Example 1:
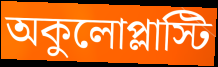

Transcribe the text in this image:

অকুলোপ্লাস্টি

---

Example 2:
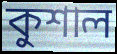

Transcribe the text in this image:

কুশাল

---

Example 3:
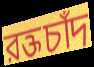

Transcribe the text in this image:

রক্তচাঁদ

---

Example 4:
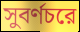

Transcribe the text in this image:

সুবর্ণচরে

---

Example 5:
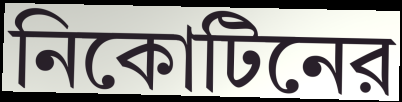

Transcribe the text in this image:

নিকোটিনের